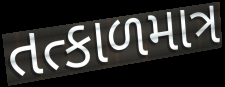
તત્કાળમાત્ર